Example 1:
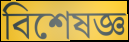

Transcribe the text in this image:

বিশেষজ্ঞ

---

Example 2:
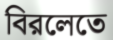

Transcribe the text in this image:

বিরলেতে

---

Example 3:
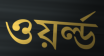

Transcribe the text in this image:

ওয়র্ল্ড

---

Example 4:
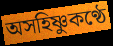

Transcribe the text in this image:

অসহিষ্ণুকণ্ঠে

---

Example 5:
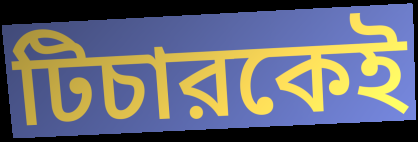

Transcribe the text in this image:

টিচারকেই